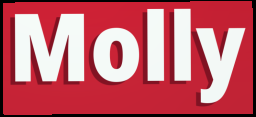
Molly